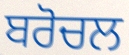
ਬਰੋਚਲ